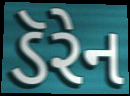
ડૅરેન